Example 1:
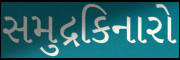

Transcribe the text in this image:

સમુદ્રકિનારો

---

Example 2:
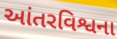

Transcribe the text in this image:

આંતરવિશ્વના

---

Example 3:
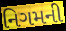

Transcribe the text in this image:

નિગમની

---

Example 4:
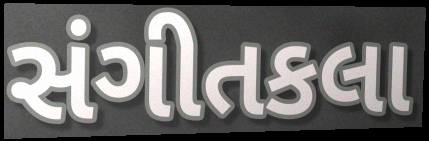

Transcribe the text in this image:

સંગીતકલા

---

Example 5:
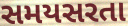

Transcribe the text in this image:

સમયસરતા